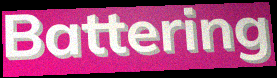
Battering